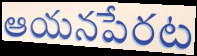
ఆయనపేరట